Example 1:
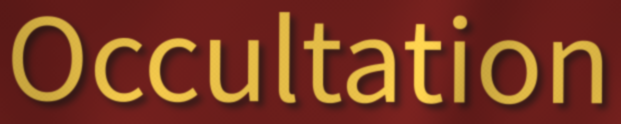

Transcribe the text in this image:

Occultation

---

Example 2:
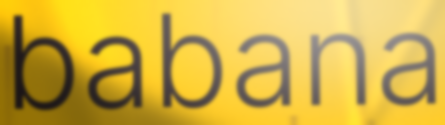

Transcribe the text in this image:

babana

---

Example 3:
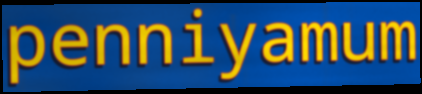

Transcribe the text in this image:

penniyamum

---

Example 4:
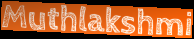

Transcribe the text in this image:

Muthlakshmi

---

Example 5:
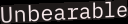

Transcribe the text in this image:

Unbearable